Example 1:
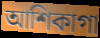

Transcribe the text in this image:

আশিকাগা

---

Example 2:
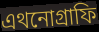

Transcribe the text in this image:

এথনোগ্রাফি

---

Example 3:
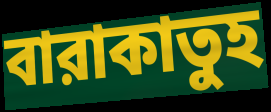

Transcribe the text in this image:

বারাকাতুহ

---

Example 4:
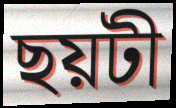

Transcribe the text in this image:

ছয়টী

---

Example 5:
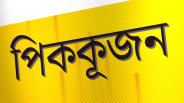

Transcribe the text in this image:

পিককূজন